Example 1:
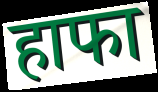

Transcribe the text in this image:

हाफा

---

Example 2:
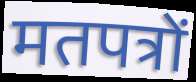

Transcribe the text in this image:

मतपत्रों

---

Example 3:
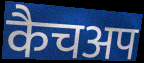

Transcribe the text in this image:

कैचअप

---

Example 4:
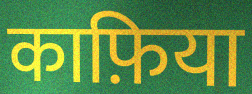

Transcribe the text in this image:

काफ़िया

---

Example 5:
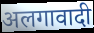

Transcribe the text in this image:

अलगावादी